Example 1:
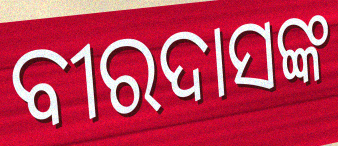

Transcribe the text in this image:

ବୀରଦାସଙ୍କ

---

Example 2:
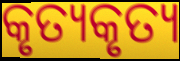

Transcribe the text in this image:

କୃତ୍ଯକୃତ୍ଯ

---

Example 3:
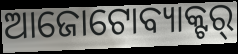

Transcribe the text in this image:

ଆଜୋଟୋବ୍ଯାକ୍ଟର୍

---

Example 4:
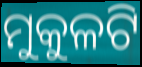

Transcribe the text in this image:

ମୁକୁଳଟି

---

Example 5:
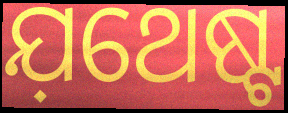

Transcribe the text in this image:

ଯ଼ଥେଷ୍ଟ